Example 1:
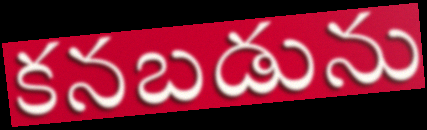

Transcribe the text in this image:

కనబడును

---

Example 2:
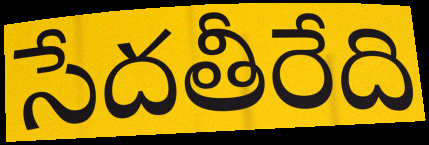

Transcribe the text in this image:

సేదతీరేది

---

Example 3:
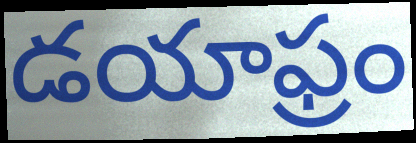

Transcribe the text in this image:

డయాఫ్రం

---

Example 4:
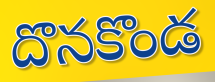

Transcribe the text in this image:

దొనకొండ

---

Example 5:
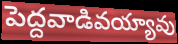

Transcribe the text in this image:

పెద్దవాడివయ్యావు